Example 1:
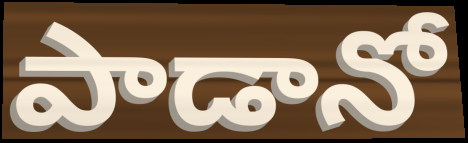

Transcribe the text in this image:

పాడానో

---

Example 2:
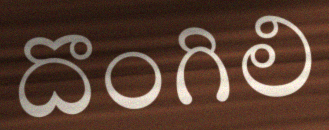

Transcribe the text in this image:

దొంగిలి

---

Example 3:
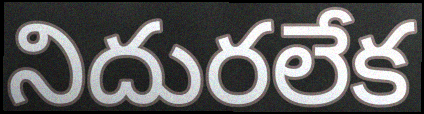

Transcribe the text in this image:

నిదురలేక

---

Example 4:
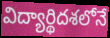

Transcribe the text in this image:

విద్యార్థిదశలోనే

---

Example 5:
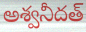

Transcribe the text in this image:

అశ్వనీదత్